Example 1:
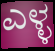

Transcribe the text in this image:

ಎಳ್ಳ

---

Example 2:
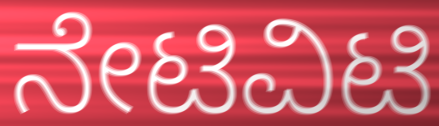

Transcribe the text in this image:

ನೇಟಿವಿಟಿ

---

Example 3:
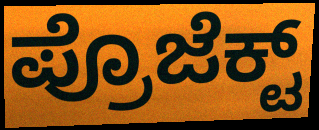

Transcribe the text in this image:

ಪ್ರೊಜೆಕ್ಟ್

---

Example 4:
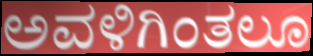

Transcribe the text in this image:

ಅವಳಿಗಿಂತಲೂ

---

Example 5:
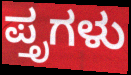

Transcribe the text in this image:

ಪ್ತೃಗಳು